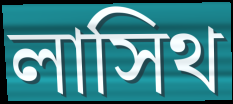
লাসিথ